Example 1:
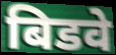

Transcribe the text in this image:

बिडवे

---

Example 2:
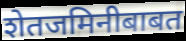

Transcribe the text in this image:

शेतजमिनीबाबत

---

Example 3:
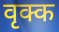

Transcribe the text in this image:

वृक्क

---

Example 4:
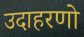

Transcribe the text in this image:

उदाहरणो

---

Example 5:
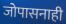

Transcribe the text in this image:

जोपासनाही